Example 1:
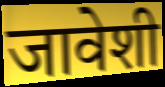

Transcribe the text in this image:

जावेशी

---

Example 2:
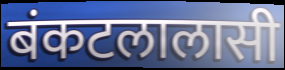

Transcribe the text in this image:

बंकटलालासी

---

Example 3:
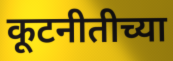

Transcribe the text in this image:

कूटनीतीच्या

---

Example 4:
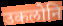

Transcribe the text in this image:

उकलोनि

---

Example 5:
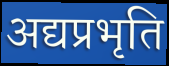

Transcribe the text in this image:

अद्यप्रभृति